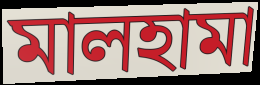
মালহামা